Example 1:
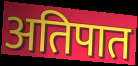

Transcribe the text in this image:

अतिपात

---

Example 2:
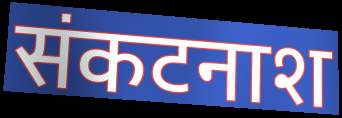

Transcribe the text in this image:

संकटनाश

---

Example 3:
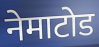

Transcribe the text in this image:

नेमाटोड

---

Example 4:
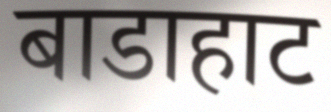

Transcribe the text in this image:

बाडाहाट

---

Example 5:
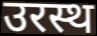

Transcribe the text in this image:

उरस्थ